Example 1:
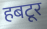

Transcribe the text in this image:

हबटूर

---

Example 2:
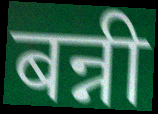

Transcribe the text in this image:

बन्नी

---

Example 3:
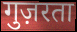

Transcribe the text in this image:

गुज़रता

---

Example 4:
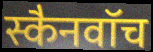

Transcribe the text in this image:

स्कैनवॉच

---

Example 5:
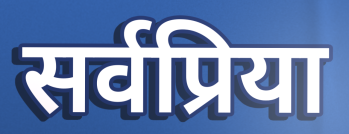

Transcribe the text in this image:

सर्वप्रिया